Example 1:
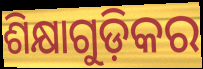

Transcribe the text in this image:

ଶିକ୍ଷାଗୁଡ଼ିକର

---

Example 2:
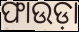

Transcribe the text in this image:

ଫାଉଡ଼ା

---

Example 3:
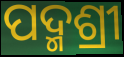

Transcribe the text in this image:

ପଦ୍ମଶ୍ରୀ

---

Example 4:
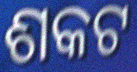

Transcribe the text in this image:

ଶକଟ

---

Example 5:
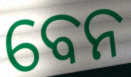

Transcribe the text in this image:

ବେନ